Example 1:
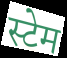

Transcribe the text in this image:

स्टेम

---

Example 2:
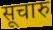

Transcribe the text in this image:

सूचारु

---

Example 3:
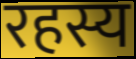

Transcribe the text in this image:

रहस्य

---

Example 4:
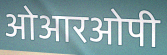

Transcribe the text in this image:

ओआरओपी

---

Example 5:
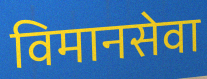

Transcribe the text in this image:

विमानसेवा